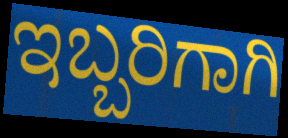
ಇಬ್ಬರಿಗಾಗಿ